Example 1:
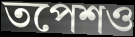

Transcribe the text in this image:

তপেশও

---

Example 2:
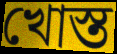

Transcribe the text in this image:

খোস্ত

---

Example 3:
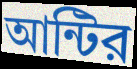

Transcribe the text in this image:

আন্টির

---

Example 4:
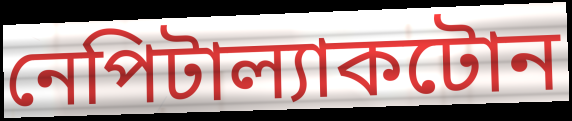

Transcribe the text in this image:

নেপিটাল্যাকটোন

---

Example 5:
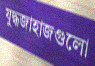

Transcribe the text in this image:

যুদ্ধজাহাজগুলো